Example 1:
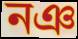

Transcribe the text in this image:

নঞ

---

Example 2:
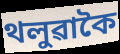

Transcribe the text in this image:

থলুৱাকৈ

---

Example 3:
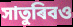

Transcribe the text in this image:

সাতুৰিবও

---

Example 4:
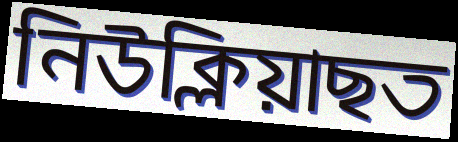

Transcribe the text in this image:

নিউক্লিয়াছত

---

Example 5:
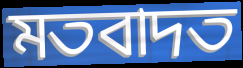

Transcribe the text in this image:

মতবাদত